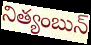
నిత్యంబున్